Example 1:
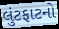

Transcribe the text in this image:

લુંટફાટનો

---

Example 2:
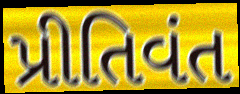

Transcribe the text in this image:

પ્રીતિવંત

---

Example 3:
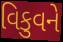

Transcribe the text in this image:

વિકુવને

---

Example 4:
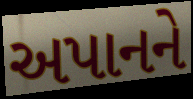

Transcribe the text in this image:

અપાનને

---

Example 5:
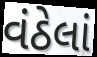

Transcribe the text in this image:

વંઠેલાં